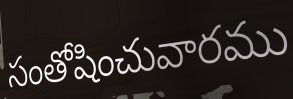
సంతోషించువారము